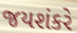
જયશંકરે